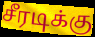
சீரடிக்கு